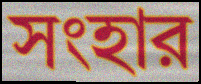
সংহার